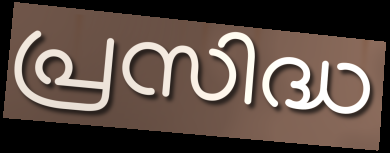
പ്രസിദ്ധ